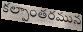
కల్పాంతరమున